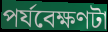
পর্যবেক্ষণটা